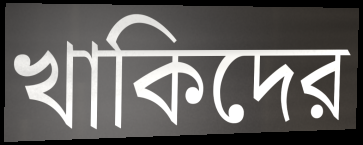
খাকিদের